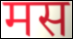
मस